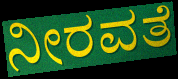
ನೀರವತೆ